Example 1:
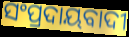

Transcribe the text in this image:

ସଂପ୍ରଦାୟବାଦୀ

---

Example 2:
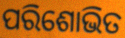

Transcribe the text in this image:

ପରିଶୋଭିତ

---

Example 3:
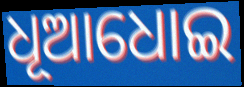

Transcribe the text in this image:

ଧୂଆଧୋଇ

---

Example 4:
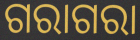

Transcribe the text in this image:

ଗରାଗରା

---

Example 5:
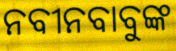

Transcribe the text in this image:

ନବୀନବାବୁଙ୍କ